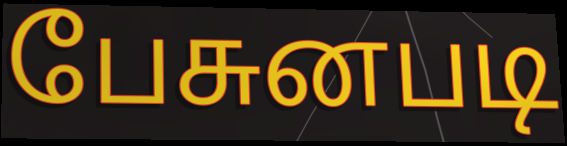
பேசுனபடி